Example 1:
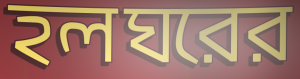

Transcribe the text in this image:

হলঘরের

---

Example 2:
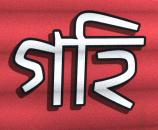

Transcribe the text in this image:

গহি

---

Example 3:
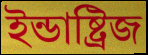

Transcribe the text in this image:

ইন্ডাষ্ট্রিজ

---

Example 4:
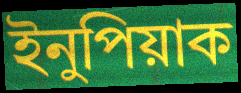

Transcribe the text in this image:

ইনুপিয়াক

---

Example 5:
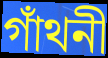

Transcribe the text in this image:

গাঁথনী